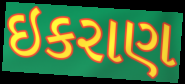
ઇકરાણ